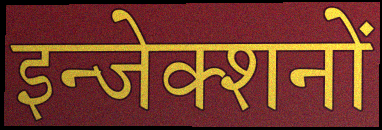
इन्जेक्शनों